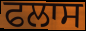
ਫਲਾਸ